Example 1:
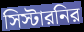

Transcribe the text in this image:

সিস্টারনির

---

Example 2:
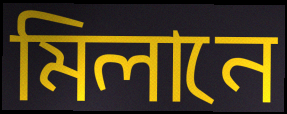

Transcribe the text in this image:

মিলানে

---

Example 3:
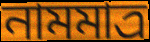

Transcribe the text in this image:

নামমাত্র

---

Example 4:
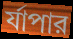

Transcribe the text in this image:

র্যাপার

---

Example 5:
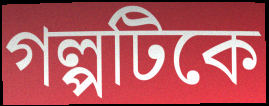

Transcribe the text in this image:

গল্পটিকে